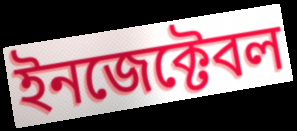
ইনজেক্টেবল